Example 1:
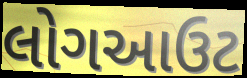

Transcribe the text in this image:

લોગઆઉટ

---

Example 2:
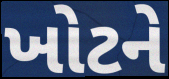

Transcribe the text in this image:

ખોટને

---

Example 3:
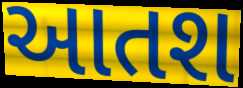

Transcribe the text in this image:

આતશ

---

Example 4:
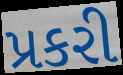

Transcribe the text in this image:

પ્રકરી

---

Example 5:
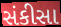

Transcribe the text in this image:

સંકીસા